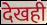
देखही